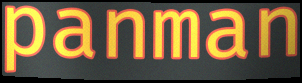
panman